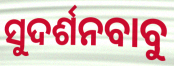
ସୁଦର୍ଶନବାବୁ